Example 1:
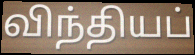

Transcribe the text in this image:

விந்தியப்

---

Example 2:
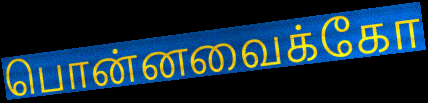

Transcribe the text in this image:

பொன்னவைக்கோ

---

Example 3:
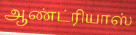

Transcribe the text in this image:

ஆண்ட்ரியாஸ்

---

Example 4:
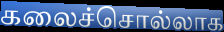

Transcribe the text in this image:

கலைச்சொல்லாக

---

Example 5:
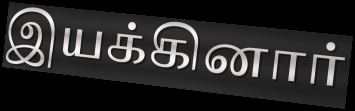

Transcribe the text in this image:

இயக்கினார்